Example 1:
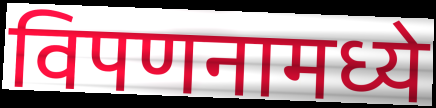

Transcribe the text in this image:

विपणनामध्ये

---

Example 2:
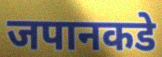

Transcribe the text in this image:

जपानकडे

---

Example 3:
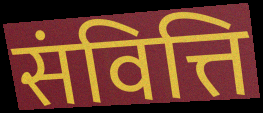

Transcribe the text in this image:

संवित्ति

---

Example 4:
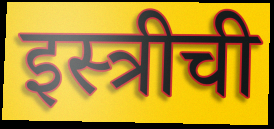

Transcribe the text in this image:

इस्त्रीची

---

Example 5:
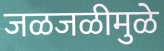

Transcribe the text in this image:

जळजळीमुळे